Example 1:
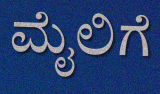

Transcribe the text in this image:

ಮೈಲಿಗೆ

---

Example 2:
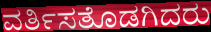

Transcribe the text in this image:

ವರ್ತಿಸತೊಡಗಿದರು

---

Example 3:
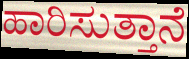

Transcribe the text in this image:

ಹಾರಿಸುತ್ತಾನೆ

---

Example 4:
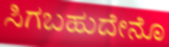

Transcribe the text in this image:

ಸಿಗಬಹುದೇನೊ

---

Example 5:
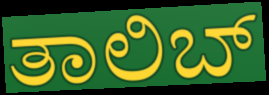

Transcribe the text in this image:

ತಾಲಿಬ್